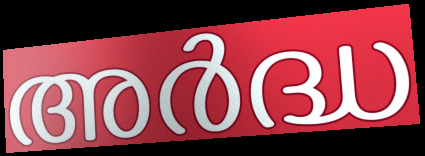
അർദ്ധ